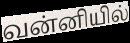
வன்னியில்